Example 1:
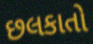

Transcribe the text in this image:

છલકાતો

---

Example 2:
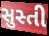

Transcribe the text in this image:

સુસ્તી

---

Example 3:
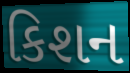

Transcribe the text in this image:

કિશન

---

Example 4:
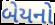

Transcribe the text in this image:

બેયનો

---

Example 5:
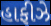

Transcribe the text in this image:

હાફીઝે